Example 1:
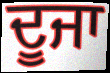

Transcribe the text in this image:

ਦੂਜਾ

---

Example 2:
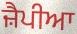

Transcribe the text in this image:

ਜ਼ੈਪੀਆ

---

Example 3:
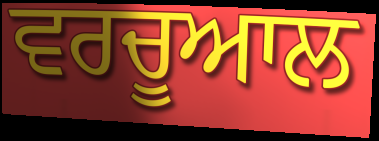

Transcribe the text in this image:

ਵਰਚੂਆਲ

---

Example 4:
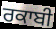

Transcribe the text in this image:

ਰਕਾਬੀ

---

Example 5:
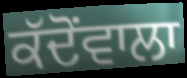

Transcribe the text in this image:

ਕੱਦੋਂਵਾਲਾ